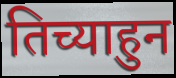
तिच्याहुन